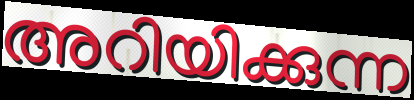
അറിയിക്കുന്ന